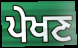
ਪੇਖਣ